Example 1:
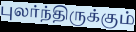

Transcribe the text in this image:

புலர்ந்திருக்கும்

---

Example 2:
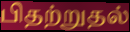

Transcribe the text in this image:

பிதற்றுதல்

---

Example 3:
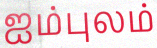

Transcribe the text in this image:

ஐம்புலம்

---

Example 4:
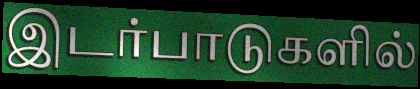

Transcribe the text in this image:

இடர்பாடுகளில்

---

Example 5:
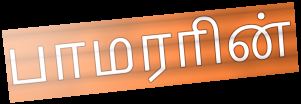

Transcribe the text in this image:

பாமரரின்